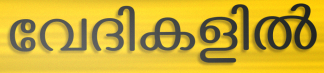
വേദികളിൽ